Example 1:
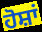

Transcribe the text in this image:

ਹੋਸ਼ਾਂ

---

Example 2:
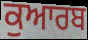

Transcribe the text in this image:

ਕੁਆਰਬ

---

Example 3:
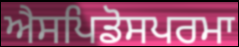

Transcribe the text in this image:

ਐਸਪਿਡੋਸਪਰਮਾ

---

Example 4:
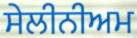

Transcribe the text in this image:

ਸੇਲੀਨੀਅਮ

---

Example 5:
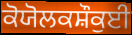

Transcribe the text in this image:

ਕੋਯੋਲਕਸ਼ੌਕੁਈ